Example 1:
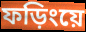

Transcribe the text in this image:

ফড়িংয়ে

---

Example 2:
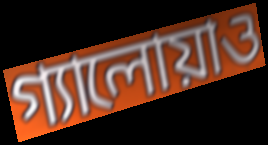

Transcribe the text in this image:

গ্যালোয়াও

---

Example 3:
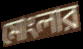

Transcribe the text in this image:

মোংলার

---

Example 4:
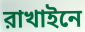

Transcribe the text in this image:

রাখাইনে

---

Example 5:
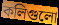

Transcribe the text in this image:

কলিগুলো